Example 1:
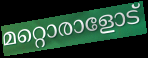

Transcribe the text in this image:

മറ്റൊരാളോട്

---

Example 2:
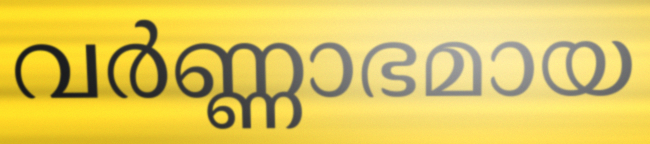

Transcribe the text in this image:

വർണ്ണാഭമായ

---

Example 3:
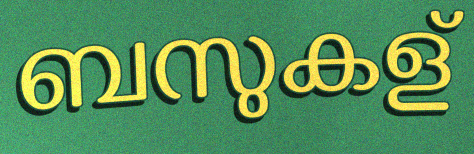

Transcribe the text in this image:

ബസുകള്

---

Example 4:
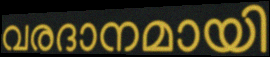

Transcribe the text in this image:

വരദാനമായി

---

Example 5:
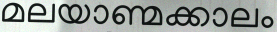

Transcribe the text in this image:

മലയാണ്മക്കാലം